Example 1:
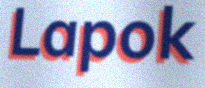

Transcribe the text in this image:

Lapok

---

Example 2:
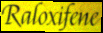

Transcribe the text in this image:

Raloxifene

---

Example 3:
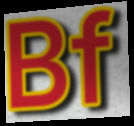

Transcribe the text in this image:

Bf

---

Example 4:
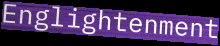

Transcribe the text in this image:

Englightenment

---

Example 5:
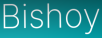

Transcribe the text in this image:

Bishoy